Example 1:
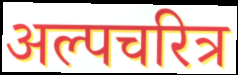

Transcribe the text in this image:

अल्पचरित्र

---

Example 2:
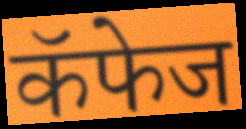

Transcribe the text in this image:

कॅफेज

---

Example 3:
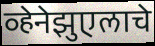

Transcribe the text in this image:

व्हेनेझुएलाचे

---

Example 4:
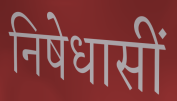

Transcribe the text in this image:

निषेधासीं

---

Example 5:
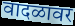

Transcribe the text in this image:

वादळावर